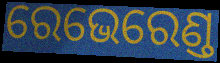
ରେଭେରେଣ୍ଡ